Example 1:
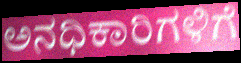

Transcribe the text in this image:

ಅನಧಿಕಾರಿಗಳಿಗೆ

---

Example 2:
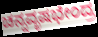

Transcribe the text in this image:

ಚನ್ನವೃಷಭೇಂದ್ರ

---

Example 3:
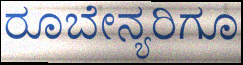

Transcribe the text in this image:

ರೂಬೇನ್ಯರಿಗೂ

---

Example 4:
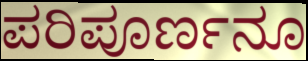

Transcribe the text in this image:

ಪರಿಪೂರ್ಣನೂ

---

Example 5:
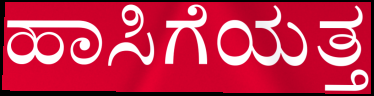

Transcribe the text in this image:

ಹಾಸಿಗೆಯತ್ತ